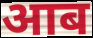
आब